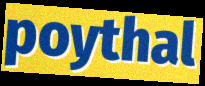
poythal